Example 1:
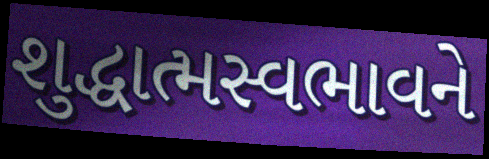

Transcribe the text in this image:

શુદ્ધાત્મસ્વભાવને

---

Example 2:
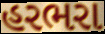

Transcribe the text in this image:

હરભરા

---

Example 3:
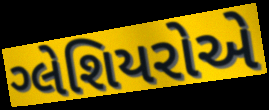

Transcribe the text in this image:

ગ્લેશિયરોએ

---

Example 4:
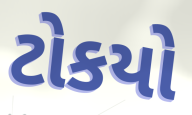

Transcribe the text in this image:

ટોકયો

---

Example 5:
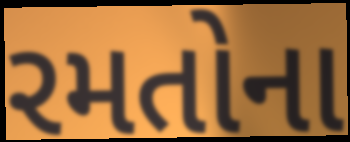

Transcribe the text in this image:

રમતોના